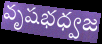
వృషభధ్వజ